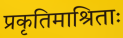
प्रकृतिमाश्रिताः